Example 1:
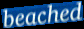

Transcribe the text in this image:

beached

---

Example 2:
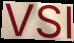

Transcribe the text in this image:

VSI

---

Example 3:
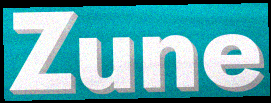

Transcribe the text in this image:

Zune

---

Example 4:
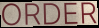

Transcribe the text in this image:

ORDER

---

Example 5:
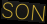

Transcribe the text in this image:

SON